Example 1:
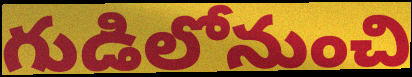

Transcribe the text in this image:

గుడిలోనుంచి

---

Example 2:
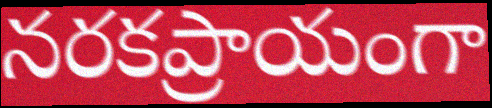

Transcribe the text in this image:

నరకప్రాయంగా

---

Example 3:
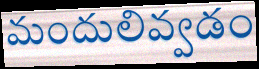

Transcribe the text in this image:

మందులివ్వడం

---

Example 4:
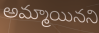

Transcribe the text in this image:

అమ్మాయినని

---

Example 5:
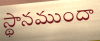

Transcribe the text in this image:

స్థానముందా